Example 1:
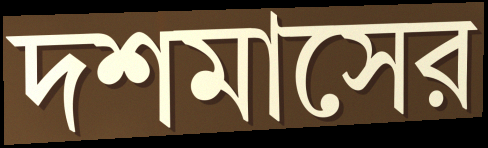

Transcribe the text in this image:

দশমাসের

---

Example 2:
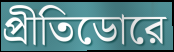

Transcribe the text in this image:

প্রীতিডোরে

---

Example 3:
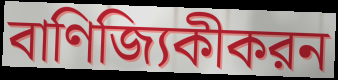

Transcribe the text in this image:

বাণিজ্যিকীকরন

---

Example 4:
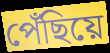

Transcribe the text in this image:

পেঁছিয়ে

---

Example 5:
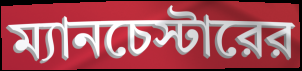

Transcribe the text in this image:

ম্যানচেস্টারের